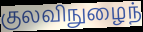
குலவிநுழைந்